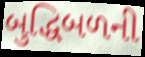
બુદ્ધિબળની